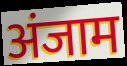
अंजाम